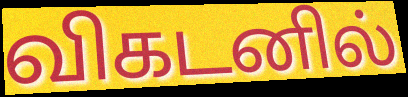
விகடனில்